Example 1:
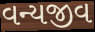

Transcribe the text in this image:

વન્યજીવ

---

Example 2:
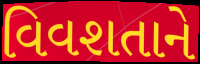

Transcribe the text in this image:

વિવશતાને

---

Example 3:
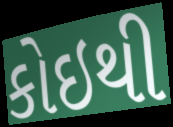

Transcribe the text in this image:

કોઇથી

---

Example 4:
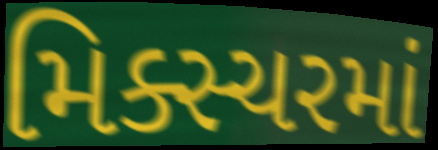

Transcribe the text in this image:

મિક્સ્ચરમાં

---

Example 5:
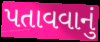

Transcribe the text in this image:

પતાવવાનું